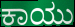
ಕಾಯು